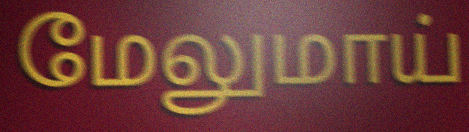
மேலுமாய்